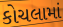
કોચલામાં